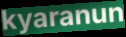
kyaranun